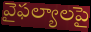
వైఫల్యాలపై